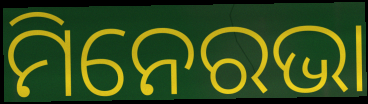
ମିନେରଭା